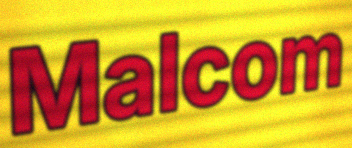
Malcom